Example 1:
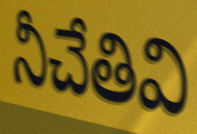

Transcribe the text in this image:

నీచేతివి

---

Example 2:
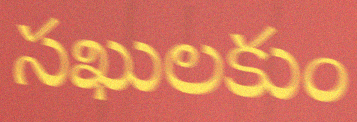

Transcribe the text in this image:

సఖులకుం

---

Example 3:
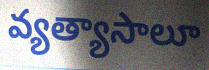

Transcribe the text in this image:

వ్యత్యాసాలూ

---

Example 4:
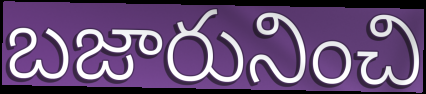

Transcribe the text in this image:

బజారునించి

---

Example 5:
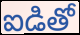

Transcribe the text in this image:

ఐడితో